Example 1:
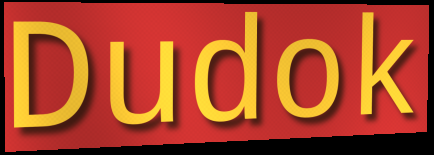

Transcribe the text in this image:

Dudok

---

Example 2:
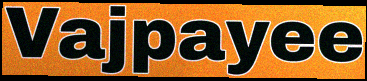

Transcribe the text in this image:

Vajpayee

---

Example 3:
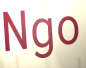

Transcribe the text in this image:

Ngo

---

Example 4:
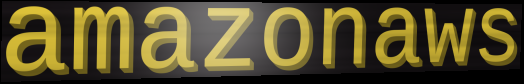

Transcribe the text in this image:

amazonaws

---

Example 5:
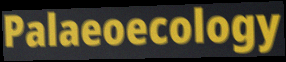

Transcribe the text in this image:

Palaeoecology